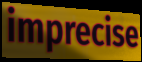
imprecise